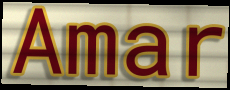
Amar